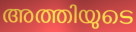
അത്തിയുടെ